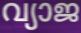
വ്യാജ